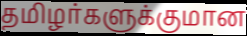
தமிழர்களுக்குமான